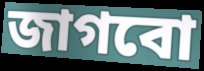
জাগবো